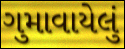
ગુમાવાયેલું